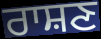
ਰਾਸ਼ਣ